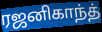
ரஜனிகாந்த்